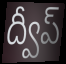
ద్వీప్